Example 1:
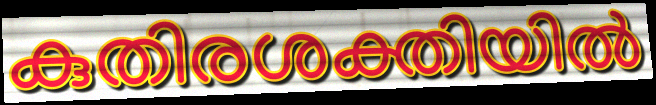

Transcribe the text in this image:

കുതിരശക്തിയിൽ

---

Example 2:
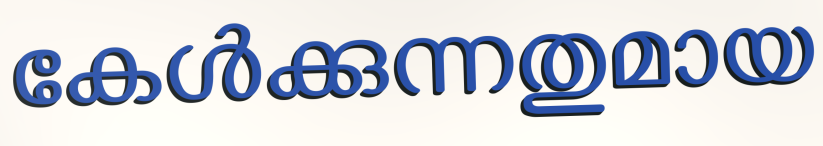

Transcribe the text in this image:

കേൾക്കുന്നതുമായ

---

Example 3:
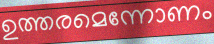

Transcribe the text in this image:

ഉത്തരമെന്നോണം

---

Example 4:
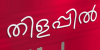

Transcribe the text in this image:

തിളപ്പിൽ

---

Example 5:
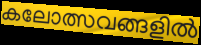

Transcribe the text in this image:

കലോത്സവങ്ങളിൽ